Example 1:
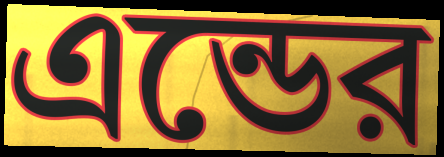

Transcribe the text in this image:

এন্ডের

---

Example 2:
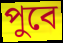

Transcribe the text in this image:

পুবে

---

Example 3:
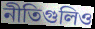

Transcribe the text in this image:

নীতিগুলিও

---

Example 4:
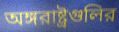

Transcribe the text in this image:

অঙ্গরাষ্ট্রগুলির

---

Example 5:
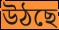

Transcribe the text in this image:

উঠছে